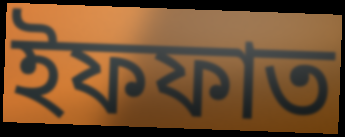
ইফফাত